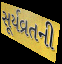
સૂર્યવ્રતની